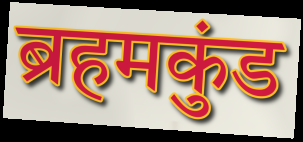
ब्रहमकुंड